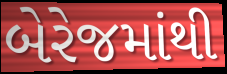
બેરેજમાંથી